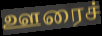
ஊரைச்